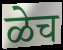
ळेच